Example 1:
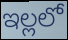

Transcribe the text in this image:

ఇల్లలో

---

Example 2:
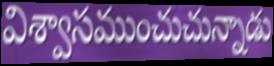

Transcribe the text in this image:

విశ్వాసముంచుచున్నాడు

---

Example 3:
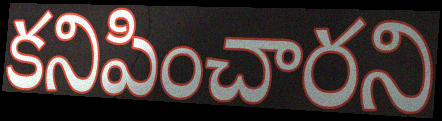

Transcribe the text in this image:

కనిపించారని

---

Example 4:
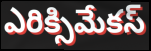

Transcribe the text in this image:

ఎరిక్సిమేకస్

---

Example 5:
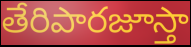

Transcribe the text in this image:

తేరిపారజూస్తా